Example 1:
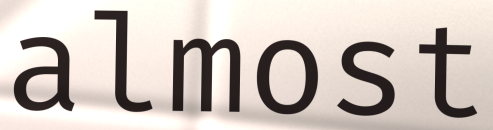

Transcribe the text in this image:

almost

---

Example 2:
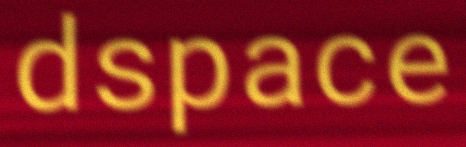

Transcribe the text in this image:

dspace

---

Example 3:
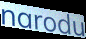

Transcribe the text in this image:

narodu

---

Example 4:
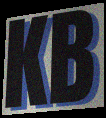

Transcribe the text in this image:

KB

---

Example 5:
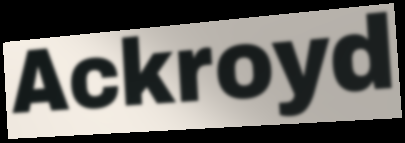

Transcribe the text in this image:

Ackroyd